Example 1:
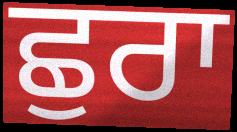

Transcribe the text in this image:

ਛੁਰਾ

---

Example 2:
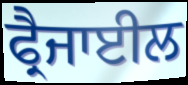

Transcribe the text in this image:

ਫ੍ਰੈਜਾਈਲ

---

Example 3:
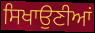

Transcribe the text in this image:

ਸਿਖਾਉਣੀਆਂ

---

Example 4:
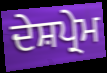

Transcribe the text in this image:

ਦੇਸ਼ਪ੍ਰੇਮ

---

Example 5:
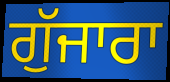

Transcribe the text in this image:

ਗੁੱਜਾਰਾ